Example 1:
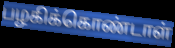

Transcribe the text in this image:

பழகிக்கொண்டாள்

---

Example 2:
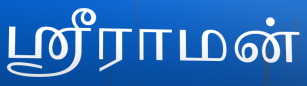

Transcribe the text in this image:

ஸ்ரீராமன்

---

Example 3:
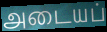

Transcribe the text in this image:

அடையப்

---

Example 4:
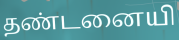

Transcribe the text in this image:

தண்டனையி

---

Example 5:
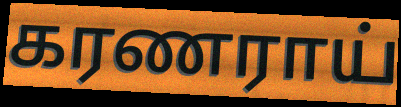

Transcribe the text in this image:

கரணராய்